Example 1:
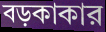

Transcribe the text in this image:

বড়কাকার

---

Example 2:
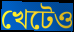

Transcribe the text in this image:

খেটেও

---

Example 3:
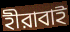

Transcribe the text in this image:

হীরাবাই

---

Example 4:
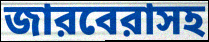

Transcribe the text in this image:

জারবেরাসহ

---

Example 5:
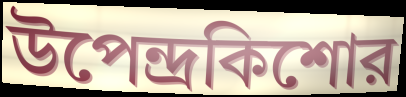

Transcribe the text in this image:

উপেন্দ্রকিশোর